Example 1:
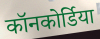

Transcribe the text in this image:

कॉनकोर्डिया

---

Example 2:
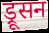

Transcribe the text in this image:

ड्रूसन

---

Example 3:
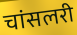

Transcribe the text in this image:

चांसलरी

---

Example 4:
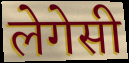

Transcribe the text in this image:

लेगेसी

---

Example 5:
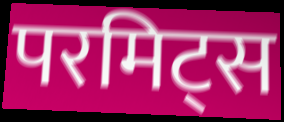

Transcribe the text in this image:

परमिट्स